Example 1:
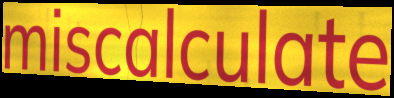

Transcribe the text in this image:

miscalculate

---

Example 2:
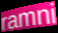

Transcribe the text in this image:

ramni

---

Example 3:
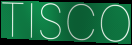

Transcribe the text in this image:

TISCO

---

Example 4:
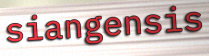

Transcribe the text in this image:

siangensis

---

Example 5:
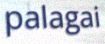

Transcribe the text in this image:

palagai